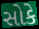
સોકે